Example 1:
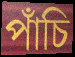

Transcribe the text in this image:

পাঁচি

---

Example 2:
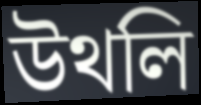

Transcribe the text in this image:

উথলি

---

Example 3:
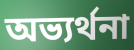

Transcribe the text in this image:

অভ্যৰ্থনা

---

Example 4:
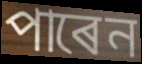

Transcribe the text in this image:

পাৰেন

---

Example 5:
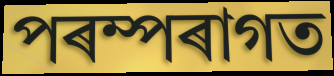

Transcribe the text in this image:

পৰম্পৰাগত